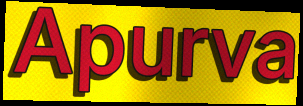
Apurva